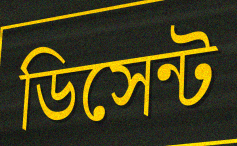
ডিসেন্ট